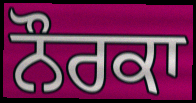
ਨੌਰਕਾ